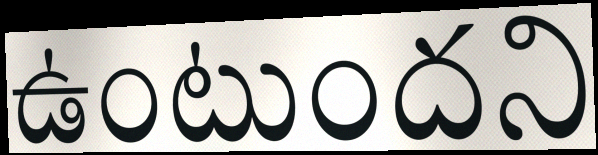
ఉంటుందని